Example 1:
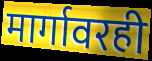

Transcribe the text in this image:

मार्गावरही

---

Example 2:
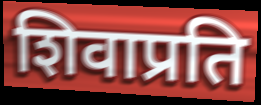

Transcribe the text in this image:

शिवाप्रति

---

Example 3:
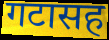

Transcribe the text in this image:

गटासह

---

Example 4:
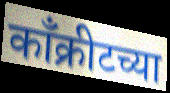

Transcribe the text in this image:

काँक्रीटच्या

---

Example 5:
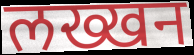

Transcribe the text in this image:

लख्खन